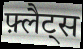
फ़्लैट्स